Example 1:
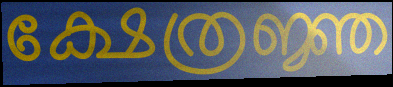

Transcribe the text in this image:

ക്ഷേത്രജ്ഞ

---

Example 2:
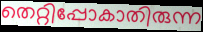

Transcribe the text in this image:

തെറ്റിപ്പോകാതിരുന്ന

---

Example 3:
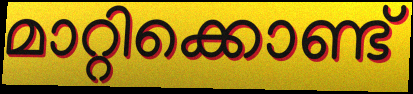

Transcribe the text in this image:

മാറ്റിക്കൊണ്ട്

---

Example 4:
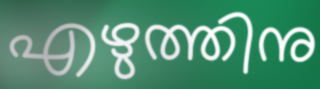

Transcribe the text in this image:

എഴുത്തിനു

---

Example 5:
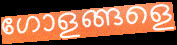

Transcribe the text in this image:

ഗോളങ്ങളെ